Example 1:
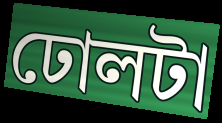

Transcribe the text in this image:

ঢোলটা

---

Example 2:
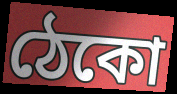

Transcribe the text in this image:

ঠেকো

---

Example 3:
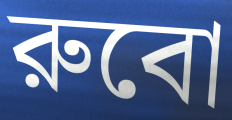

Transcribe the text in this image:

রুবো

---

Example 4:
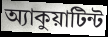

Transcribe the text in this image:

অ্যাকুয়াটিন্ট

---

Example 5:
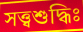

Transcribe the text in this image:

সত্ত্বশুদ্ধিঃ